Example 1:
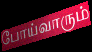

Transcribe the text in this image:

போய்வாரும்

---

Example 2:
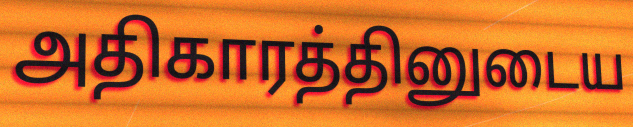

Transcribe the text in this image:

அதிகாரத்தினுடைய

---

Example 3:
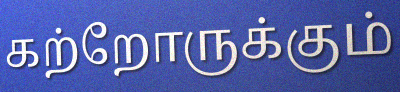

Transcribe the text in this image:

கற்றோருக்கும்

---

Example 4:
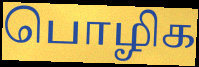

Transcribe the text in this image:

பொழிக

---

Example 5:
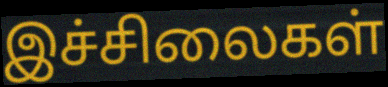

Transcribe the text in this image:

இச்சிலைகள்